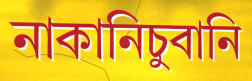
নাকানিচুবানি